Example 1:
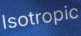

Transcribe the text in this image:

Isotropic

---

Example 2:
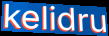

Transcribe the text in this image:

kelidru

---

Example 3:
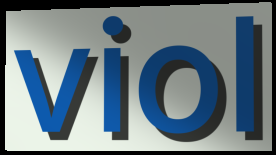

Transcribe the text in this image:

viol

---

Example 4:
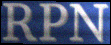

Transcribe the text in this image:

RPN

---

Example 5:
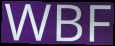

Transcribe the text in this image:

WBF